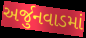
અર્જુનવાડમાં